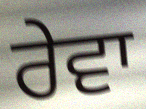
ਰੇਵਾ